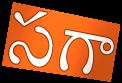
సగా